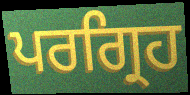
ਪਰਗ੍ਰਿਹ